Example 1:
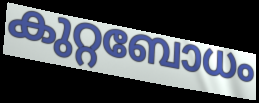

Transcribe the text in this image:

കുറ്റബോധം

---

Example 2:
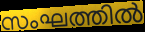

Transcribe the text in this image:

സംഘത്തിൽ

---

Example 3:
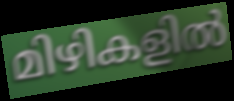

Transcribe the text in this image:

മിഴികളിൽ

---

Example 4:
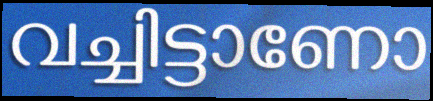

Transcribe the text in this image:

വച്ചിട്ടാണോ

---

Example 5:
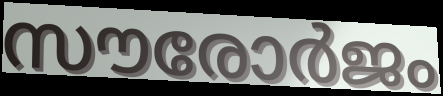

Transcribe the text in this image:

സൗരോർജം